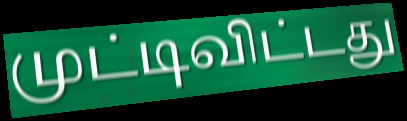
முட்டிவிட்டது